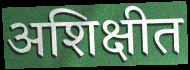
अशिक्षीत